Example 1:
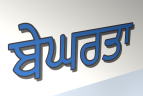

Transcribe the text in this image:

ਬੇਘਰਤਾ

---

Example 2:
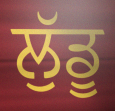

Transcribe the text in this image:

ਲੁੱਡੂ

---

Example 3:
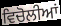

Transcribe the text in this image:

ਵਿਚੋਲੀਆਂ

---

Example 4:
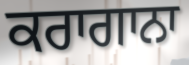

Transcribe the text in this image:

ਕਰਾਗਾਨਾ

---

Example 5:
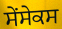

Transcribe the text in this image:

ਸੇਂਸੇਕਸ